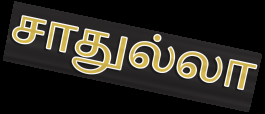
சாதுல்லா